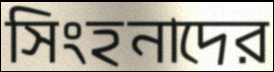
সিংহনাদের